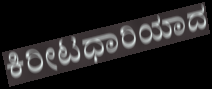
ಕಿರೀಟಧಾರಿಯಾದ